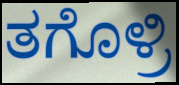
ತಗೊಳ್ರಿ